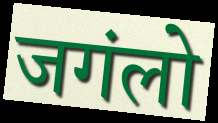
जगंलो